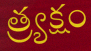
త్ర్యక్షం